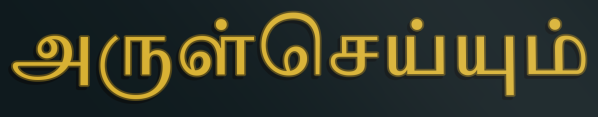
அருள்செய்யும்